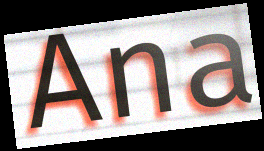
Ana